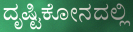
ದೃಷ್ಟಿಕೋನದಲ್ಲಿ